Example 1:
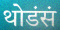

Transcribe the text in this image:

थोडंसं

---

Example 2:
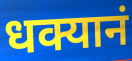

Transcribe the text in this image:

धक्यानं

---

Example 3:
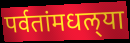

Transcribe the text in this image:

पर्वतांमधल्या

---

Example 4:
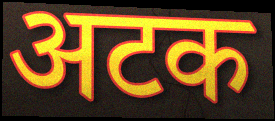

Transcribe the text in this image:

अटक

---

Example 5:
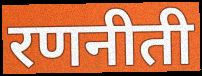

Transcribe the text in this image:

रणनीती